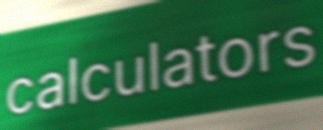
calculators